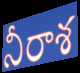
నీరాశ